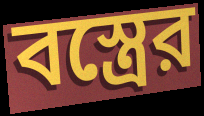
বস্ত্রের